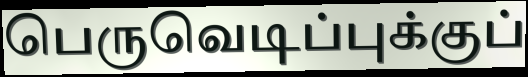
பெருவெடிப்புக்குப்